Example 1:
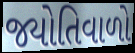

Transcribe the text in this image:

જ્યોતિવાળો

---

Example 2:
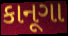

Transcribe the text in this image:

કાનૂગા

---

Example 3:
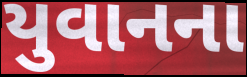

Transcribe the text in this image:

યુવાનના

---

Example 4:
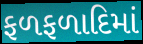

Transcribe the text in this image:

ફળફળાદિમાં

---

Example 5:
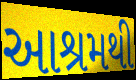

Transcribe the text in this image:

આશ્રમથી